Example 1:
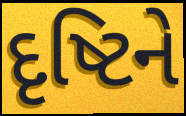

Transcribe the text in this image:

દૃષ્ટિને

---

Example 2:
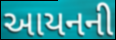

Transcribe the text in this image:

આયનની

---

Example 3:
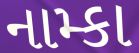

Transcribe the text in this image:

નામ્કા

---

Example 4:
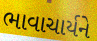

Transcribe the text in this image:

ભાવાચાર્યને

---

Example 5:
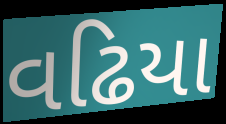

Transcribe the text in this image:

વઢિયા